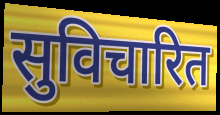
सुविचारित